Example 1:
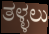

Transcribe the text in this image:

ತಳ್ಳಲು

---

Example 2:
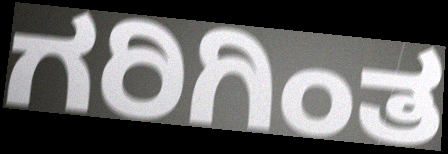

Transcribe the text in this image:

ಗರಿಗಿಂತ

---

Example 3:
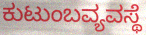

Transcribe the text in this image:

ಕುಟುಂಬವ್ಯವಸ್ಥೆ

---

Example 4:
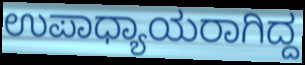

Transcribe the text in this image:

ಉಪಾಧ್ಯಾಯರಾಗಿದ್ದ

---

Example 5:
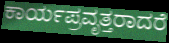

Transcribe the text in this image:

ಕಾರ್ಯಪ್ರವೃತ್ತರಾದರೆ